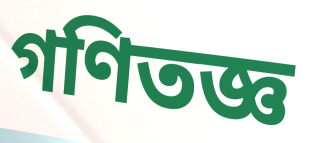
গণিতজ্ঞ